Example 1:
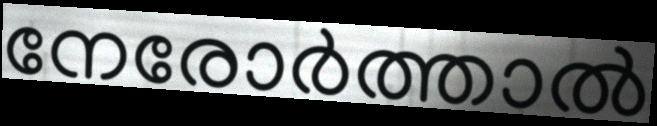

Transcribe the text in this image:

നേരോർത്താൽ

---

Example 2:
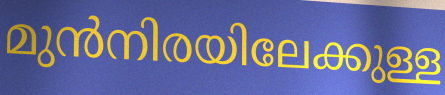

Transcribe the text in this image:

മുൻനിരയിലേക്കുള്ള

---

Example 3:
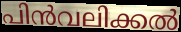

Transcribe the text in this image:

പിൻവലിക്കൽ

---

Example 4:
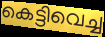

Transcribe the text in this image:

കെട്ടിവെച്ച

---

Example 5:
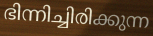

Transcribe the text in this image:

ഭിന്നിച്ചിരിക്കുന്ന